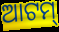
ଆଟମ୍